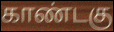
காண்டகு